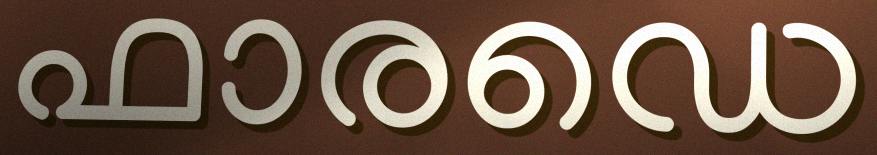
ഫാരഡെ